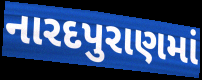
નારદપુરાણમાં